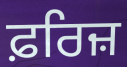
ਫ਼ਰਿਜ਼